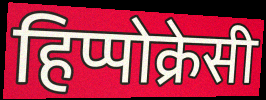
हिप्पोक्रेसी